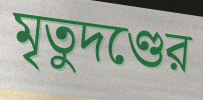
মৃতুদণ্ডের